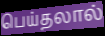
பெய்தலால்